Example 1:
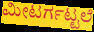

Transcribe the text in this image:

ಮೀಟರ್ಗಟ್ಟಲೆ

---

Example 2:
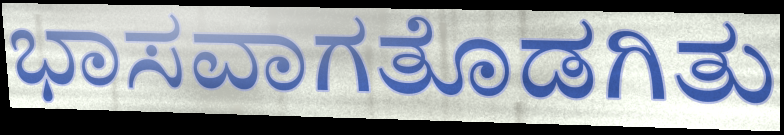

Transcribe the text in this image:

ಭಾಸವಾಗತೊಡಗಿತು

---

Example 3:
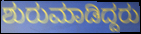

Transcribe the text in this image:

ಶುರುಮಾಡಿದ್ದರು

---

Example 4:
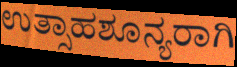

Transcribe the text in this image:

ಉತ್ಸಾಹಶೂನ್ಯರಾಗಿ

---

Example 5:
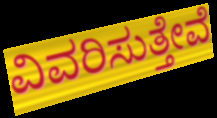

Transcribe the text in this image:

ವಿವರಿಸುತ್ತೇವೆ